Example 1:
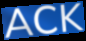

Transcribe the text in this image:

ACK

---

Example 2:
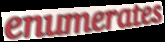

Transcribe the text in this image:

enumerates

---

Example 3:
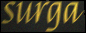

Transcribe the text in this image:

surga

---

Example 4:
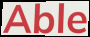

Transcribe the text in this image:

Able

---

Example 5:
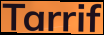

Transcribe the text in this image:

Tarrif